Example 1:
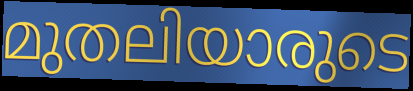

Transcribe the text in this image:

മുതലിയാരുടെ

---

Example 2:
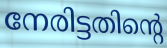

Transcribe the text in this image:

നേരിട്ടതിന്റെ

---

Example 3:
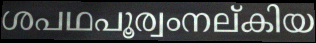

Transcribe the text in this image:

ശപഥപൂര്വംനല്കിയ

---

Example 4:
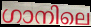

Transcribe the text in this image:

ഗാനിലെ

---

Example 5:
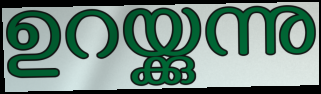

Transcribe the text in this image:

ഉറയ്ക്കുന്നു